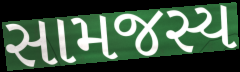
સામજસ્ય